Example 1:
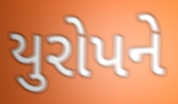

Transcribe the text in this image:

યુરોપને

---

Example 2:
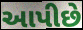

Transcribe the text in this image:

આપીછે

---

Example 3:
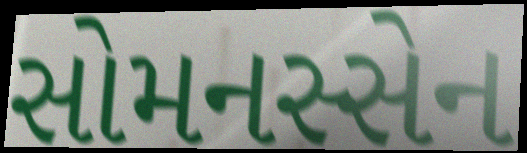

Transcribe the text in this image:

સોમનસ્સેન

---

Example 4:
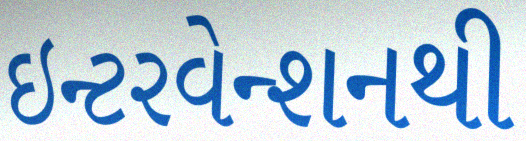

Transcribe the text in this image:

ઇન્ટરવેન્શનથી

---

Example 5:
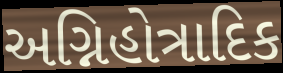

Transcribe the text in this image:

અગ્નિહોત્રાદિક